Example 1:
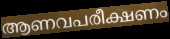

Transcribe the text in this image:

ആണവപരീക്ഷണം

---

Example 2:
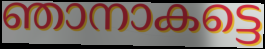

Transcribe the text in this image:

ഞാനാകട്ടെ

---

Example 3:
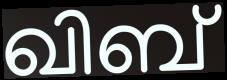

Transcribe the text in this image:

ഖിബ്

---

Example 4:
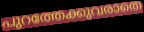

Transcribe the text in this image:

പുറത്തേക്കുവരാതെ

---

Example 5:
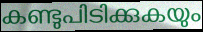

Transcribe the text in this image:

കണ്ടുപിടിക്കുകയും